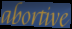
abortive